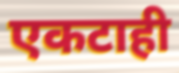
एकटाही